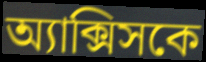
অ্যাক্সিসকে